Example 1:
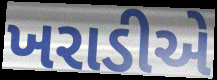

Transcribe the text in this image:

ખરાડીએ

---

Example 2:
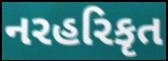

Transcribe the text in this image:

નરહરિકૃત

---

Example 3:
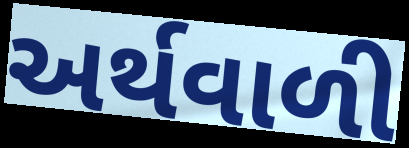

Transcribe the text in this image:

અર્થવાળી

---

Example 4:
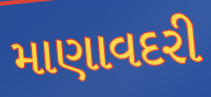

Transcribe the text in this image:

માણાવદરી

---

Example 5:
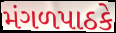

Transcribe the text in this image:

મંગળપાઠકે